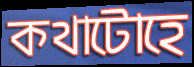
কথাটোহে